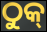
ଠୁକ୍